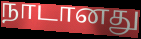
நாடானது